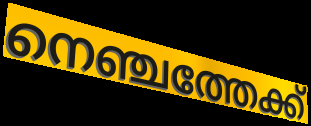
നെഞ്ചത്തേക്ക്